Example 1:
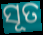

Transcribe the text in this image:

ସୂତ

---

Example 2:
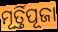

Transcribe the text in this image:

ମୂର୍ତ୍ତିପୂଜା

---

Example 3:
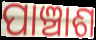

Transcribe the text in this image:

ପାଞ୍ଚାଶ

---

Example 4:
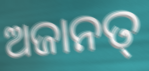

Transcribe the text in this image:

ଅଜାନତ୍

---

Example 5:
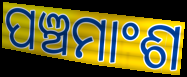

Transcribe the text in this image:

ପଞ୍ଚମାଂଶ